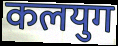
कलयुग